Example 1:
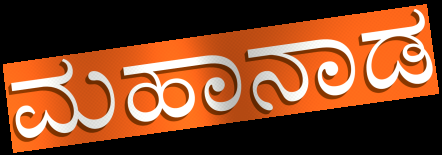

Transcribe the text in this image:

ಮಹಾನಾಡ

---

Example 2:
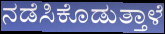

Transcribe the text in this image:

ನಡೆಸಿಕೊಡುತ್ತಾಳೆ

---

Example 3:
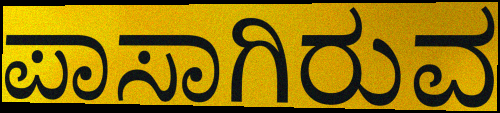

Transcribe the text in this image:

ಪಾಸಾಗಿರುವ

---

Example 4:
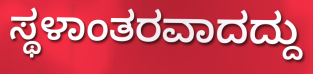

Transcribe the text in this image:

ಸ್ಥಳಾಂತರವಾದದ್ದು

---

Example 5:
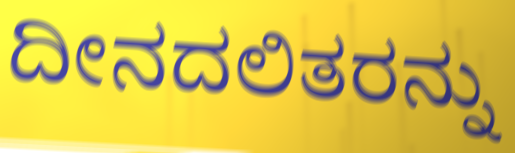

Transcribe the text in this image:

ದೀನದಲಿತರನ್ನು